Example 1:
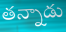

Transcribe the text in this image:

తన్నాడు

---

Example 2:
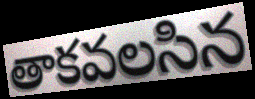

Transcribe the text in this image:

తాకవలసిన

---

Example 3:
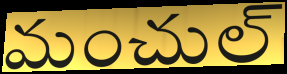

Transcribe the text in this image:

మంచుల్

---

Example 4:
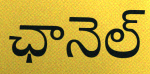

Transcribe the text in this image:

ఛానెల్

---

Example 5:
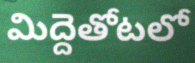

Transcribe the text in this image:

మిద్దెతోటలో